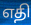
எதி